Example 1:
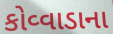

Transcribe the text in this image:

કોવ્વાડાના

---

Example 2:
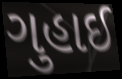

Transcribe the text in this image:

ગુહાઈ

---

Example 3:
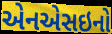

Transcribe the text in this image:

એનએસઇનો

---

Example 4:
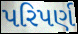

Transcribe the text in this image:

પરિપર્ણ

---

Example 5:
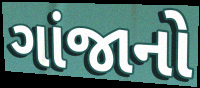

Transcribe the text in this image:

ગાંજાનો